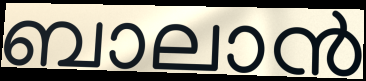
ബാലാൻ